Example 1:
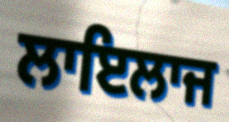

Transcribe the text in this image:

ਲਾਇਲਾਜ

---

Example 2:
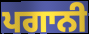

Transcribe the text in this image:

ਪਗਾਨੀ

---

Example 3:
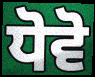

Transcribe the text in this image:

ਧੋਵੋ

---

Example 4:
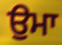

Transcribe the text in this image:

ਉਮਾ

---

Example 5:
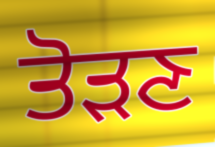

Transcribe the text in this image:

ਤੋੜਣ